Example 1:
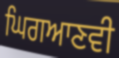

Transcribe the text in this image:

ਘਿਗਆਣਵੀ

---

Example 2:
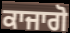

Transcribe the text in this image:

ਕਾਜਾਗੋ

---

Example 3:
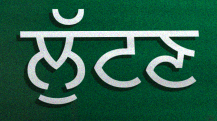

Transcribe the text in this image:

ਲੁੱਟਣ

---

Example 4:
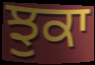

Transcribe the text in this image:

ਝੁਕਾ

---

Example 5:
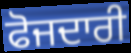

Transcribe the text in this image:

ਫੋਜਦਾਰੀ